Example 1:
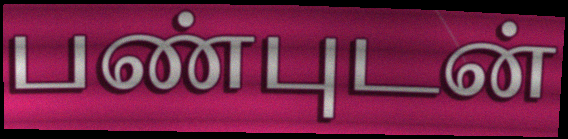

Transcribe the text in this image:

பண்புடன்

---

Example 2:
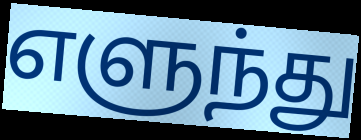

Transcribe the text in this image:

எளுந்து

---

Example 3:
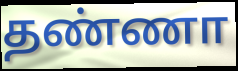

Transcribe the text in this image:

தண்ணா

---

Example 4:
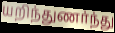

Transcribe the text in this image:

யறிந்துணர்ந்து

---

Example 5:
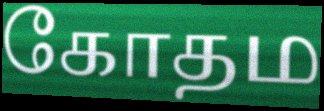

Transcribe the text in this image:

கோதம